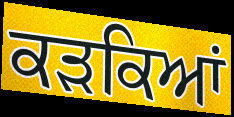
ਕੜਕਿਆਂ